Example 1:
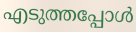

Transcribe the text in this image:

എടുത്തപ്പോൾ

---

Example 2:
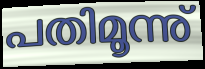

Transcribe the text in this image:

പതിമൂന്നു്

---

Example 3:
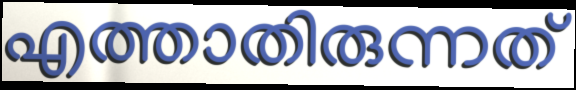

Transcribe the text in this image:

എത്താതിരുന്നത്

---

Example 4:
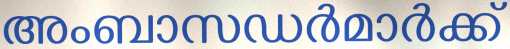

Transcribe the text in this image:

അംബാസഡർമാർക്ക്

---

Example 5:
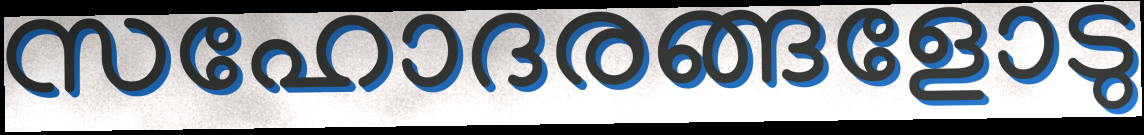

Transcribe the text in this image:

സഹോദരങ്ങളോടു